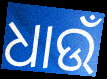
ଧାଉଁ